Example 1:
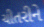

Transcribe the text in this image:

ચીતરીને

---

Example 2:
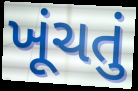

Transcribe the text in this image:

ખૂંચતું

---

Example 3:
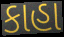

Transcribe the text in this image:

કાહા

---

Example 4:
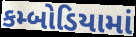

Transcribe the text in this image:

કમ્બોડિયામાં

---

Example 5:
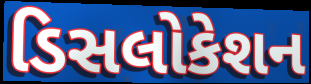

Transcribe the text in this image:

ડિસલોકેશન